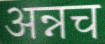
अन्नच